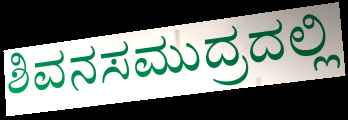
ಶಿವನಸಮುದ್ರದಲ್ಲಿ